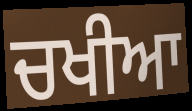
ਚਖੀਆ